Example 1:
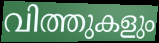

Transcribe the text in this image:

വിത്തുകളും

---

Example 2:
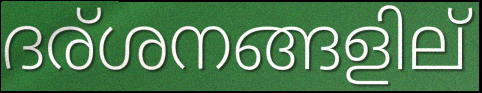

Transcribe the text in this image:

ദര്ശനങ്ങളില്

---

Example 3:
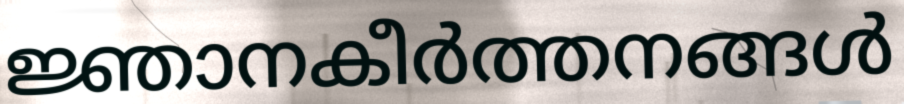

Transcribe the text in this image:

ജ്ഞാനകീർത്തനങ്ങൾ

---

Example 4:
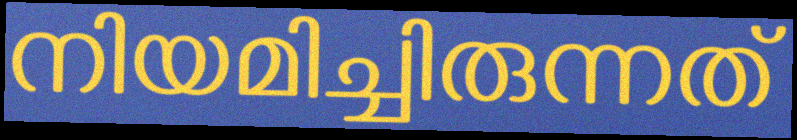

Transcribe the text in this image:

നിയമിച്ചിരുന്നത്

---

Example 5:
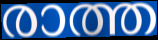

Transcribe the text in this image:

രാത്ത